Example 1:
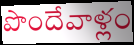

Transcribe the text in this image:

పొందేవాళ్లం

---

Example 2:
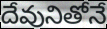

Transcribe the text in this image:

దేవునితోనే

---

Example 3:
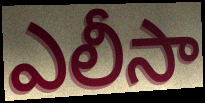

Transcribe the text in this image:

ఎలీసా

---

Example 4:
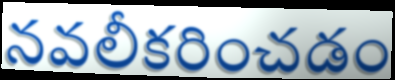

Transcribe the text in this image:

నవలీకరించడం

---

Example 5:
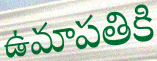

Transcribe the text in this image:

ఉమాపతికి